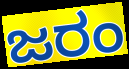
ಜರಂ